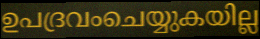
ഉപദ്രവംചെയ്യുകയില്ല